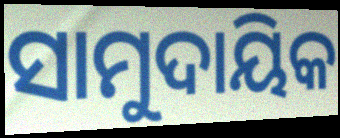
ସାମୁଦାୟିକ